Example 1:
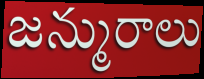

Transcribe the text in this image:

జన్మురాలు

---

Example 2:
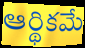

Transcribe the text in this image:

ఆర్థికమే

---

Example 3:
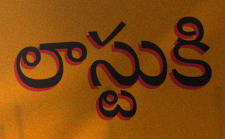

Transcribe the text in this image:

లాస్టుకి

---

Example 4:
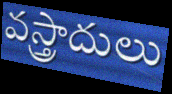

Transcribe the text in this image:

వస్త్రాదులు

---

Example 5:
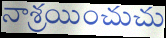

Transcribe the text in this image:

నాశ్రయించుచు